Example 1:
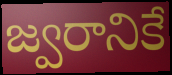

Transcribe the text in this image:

జ్వరానికే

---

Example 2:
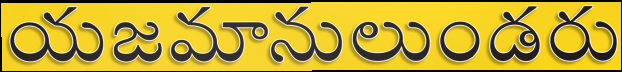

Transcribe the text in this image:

యజమానులుండరు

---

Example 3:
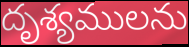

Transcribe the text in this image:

దృశ్యములను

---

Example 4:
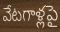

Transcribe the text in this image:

వేటగాళ్లపై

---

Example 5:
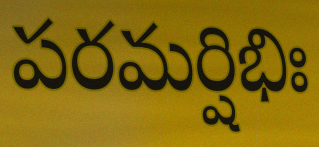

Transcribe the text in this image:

పరమర్షిభిః